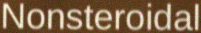
Nonsteroidal